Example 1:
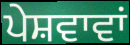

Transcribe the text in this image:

ਪੇਸ਼ਵਾਵਾਂ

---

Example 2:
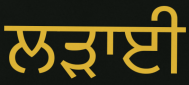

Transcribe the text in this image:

ਲੜਾਈ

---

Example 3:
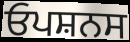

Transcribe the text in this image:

ਓਪਸ਼ਨਸ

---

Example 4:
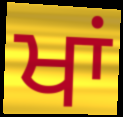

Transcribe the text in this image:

ਖਾਂ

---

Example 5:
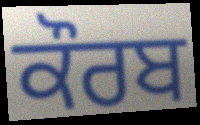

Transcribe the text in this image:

ਕੌਰਬ